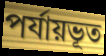
পর্যায়ভূত